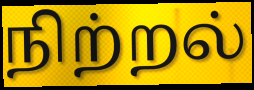
நிற்றல்